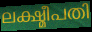
ലക്ഷ്മീപതി